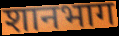
शानभाग